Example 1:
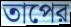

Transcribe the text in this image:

তাপের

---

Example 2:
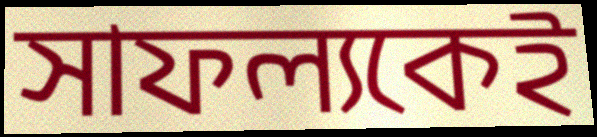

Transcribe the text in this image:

সাফল্যকেই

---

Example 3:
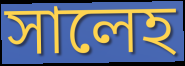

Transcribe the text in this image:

সালেহ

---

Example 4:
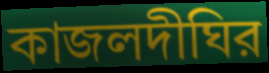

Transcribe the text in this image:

কাজলদীঘির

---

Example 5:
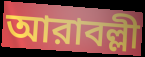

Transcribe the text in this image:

আরাবল্লী